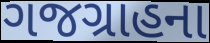
ગજગ્રાહના